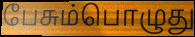
பேசும்பொழுது